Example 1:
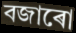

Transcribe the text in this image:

বজাৰো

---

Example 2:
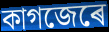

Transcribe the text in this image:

কাগজেৰে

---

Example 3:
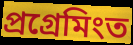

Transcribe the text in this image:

প্ৰগ্ৰেমিংত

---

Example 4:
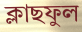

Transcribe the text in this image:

ক্লাছফুল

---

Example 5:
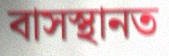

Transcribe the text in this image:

বাসস্থানত